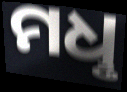
ମଧୢ